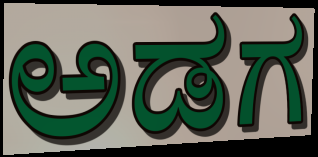
ಅಡಗ